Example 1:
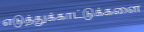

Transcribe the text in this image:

எடுத்துக்காட்டுக்களை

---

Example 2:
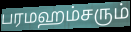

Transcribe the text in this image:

பரமஹம்சரும்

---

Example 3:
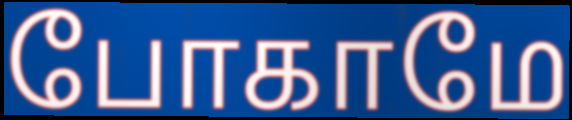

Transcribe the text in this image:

போகாமே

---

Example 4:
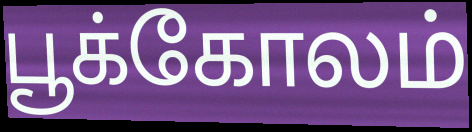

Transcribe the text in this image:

பூக்கோலம்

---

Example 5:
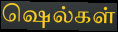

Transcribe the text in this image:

ஷெல்கள்